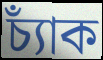
চ্যাঁক